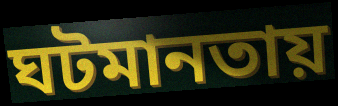
ঘটমানতায়